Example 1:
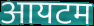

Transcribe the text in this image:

आयटम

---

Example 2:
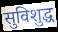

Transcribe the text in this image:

सुविशुद्ध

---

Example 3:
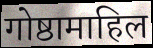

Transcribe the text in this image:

गोष्ठामाहिल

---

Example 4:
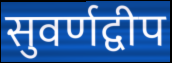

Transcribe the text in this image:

सुवर्णद्वीप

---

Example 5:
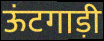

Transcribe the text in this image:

ऊंटगाड़ी